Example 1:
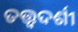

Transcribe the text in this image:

ତତ୍ତ୍ଵଦର୍ଶୀ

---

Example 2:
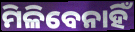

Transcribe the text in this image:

ମିଳିବେନାହିଁ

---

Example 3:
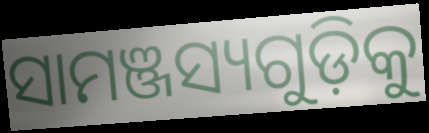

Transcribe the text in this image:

ସାମଞ୍ଜସ୍ୟଗୁଡ଼ିକୁ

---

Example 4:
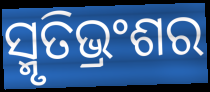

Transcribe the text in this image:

ସ୍ମୃତିଭ୍ରଂଶର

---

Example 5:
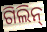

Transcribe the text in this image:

ଗିଲିନ୍